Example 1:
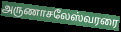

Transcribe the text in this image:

அருணாசலேஸ்வரரை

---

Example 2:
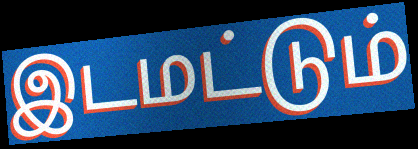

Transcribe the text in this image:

இடமட்டும்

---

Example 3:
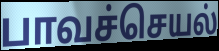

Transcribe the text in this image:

பாவச்செயல்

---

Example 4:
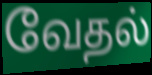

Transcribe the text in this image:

வேதல்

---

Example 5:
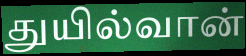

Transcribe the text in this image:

துயில்வான்